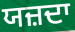
ਯਜ਼ਦਾ